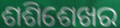
ଶଶିଶେଖର